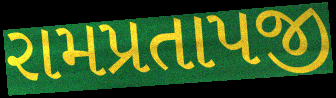
રામપ્રતાપજી